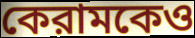
কেরামকেও